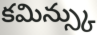
కమిన్స్కు